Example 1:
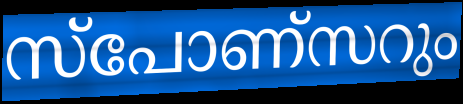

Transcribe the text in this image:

സ്പോണ്സറും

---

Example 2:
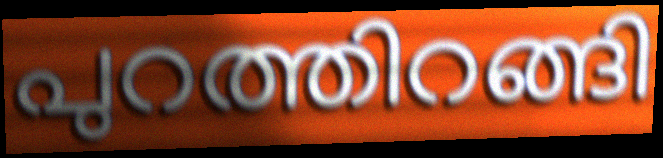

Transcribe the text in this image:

പുറത്തിറങ്ങി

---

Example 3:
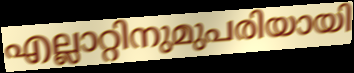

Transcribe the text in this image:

എല്ലാറ്റിനുമുപരിയായി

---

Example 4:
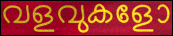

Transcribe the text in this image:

വളവുകളോ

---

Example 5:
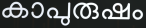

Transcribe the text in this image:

കാപുരുഷം